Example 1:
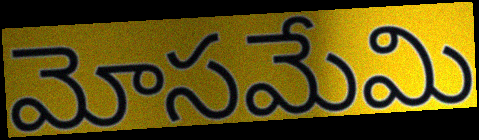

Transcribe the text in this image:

మోసమేమి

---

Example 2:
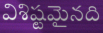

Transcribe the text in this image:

విశిష్టమైనది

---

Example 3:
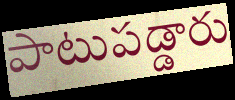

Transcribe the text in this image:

పాటుపడ్డారు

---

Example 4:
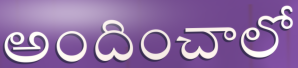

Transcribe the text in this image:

అందించాలో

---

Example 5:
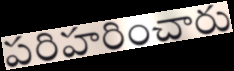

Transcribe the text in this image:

పరిహరించారు